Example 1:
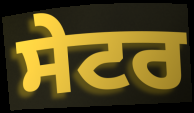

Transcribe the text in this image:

ਸੇਟਰ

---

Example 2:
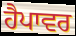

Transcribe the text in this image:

ਹੈਪਾਵਰ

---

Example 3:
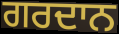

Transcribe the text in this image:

ਗਰਦਾਨ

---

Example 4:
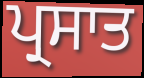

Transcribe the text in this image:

ਪ੍ਰਸਾਤ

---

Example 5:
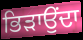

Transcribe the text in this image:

ਭਿੜਾਉਂਦਾ